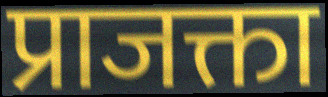
प्राजक्ता